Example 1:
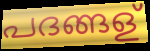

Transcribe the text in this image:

പദങ്ങള്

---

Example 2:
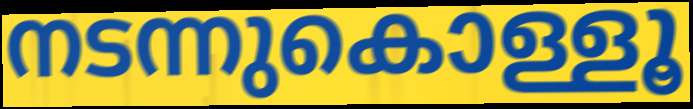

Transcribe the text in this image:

നടന്നുകൊള്ളൂ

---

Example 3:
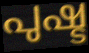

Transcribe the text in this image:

പുഷ്ട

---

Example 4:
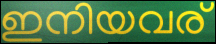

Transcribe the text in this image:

ഇനിയവര്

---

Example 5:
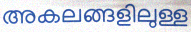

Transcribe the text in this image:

അകലങ്ങളിലുള്ള